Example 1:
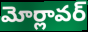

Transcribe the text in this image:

మోర్లావర్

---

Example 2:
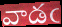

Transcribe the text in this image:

వాడఁ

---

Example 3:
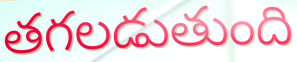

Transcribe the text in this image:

తగలడుతుంది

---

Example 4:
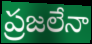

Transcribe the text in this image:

ప్రజలేనా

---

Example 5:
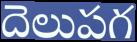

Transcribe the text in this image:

దెలుపగ